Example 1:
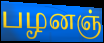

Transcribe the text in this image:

பழனஞ்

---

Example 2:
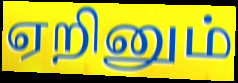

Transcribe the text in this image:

ஏறினும்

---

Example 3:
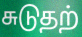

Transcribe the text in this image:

சுடுதற்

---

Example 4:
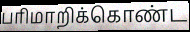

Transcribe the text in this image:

பரிமாறிக்கொண்ட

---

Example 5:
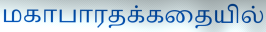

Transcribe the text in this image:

மகாபாரதக்கதையில்